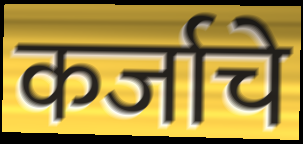
कर्जाचे